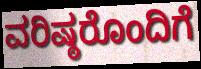
ವರಿಷ್ಠರೊಂದಿಗೆ